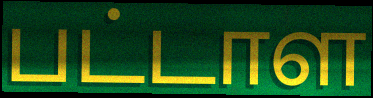
பட்டாள